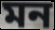
মন